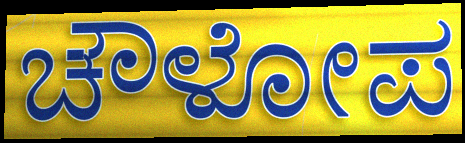
ಚೌಳೋಪ